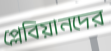
প্লেবিয়ানদের